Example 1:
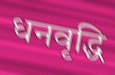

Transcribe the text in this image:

धनवृद्धि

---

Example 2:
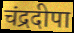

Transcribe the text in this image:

चंद्रदीपा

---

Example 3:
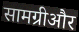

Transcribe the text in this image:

सामग्रीऔर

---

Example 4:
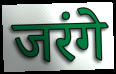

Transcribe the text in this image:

जरंगे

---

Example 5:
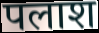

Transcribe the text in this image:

पलाश